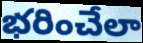
భరించేలా